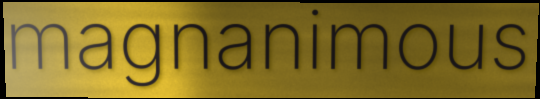
magnanimous